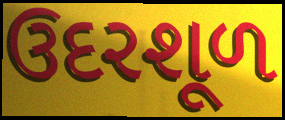
ઉદરશૂળ